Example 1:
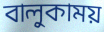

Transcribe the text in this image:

বালুকাময়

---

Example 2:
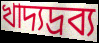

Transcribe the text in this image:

খাদ্যদ্রব্য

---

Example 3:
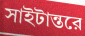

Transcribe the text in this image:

সাইটান্তরে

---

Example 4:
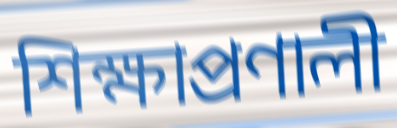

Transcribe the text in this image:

শিক্ষাপ্রণালী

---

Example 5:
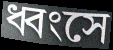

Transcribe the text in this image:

ধ্বংসে